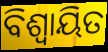
ବିଶ୍ବାୟିତ